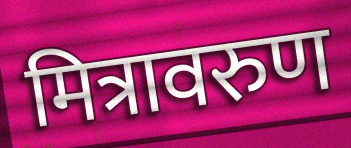
मित्रावरुण